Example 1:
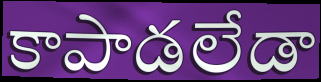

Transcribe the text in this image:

కాపాడలేడా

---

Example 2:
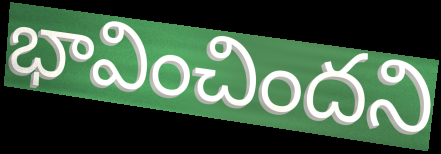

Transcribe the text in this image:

భావించిందని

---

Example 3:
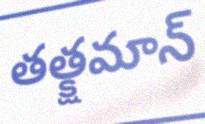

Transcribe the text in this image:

తత్క్షమాన్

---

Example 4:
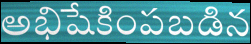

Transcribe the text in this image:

అభిషేకింపబడిన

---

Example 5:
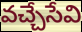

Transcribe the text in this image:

వచ్చేసేవి